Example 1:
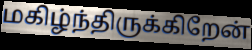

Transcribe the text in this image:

மகிழ்ந்திருக்கிறேன்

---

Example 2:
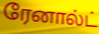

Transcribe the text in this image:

ரேனால்ட்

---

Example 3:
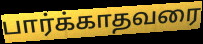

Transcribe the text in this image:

பார்க்காதவரை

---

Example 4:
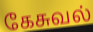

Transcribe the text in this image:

கேசுவல்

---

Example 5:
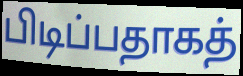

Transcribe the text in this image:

பிடிப்பதாகத்